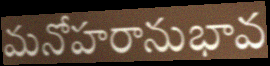
మనోహరానుభావ